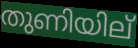
തുണിയില്